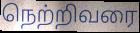
நெற்றிவரை